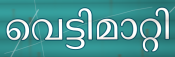
വെട്ടിമാറ്റി